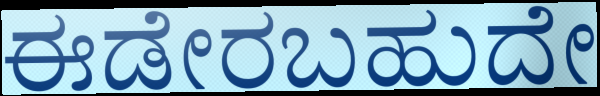
ಈಡೇರಬಹುದೇ